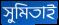
সুমিতাই